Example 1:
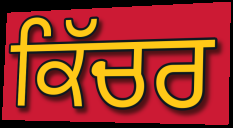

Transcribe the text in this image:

ਕਿੱਚਰ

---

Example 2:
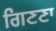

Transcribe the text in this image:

ਗਿਣਣਾ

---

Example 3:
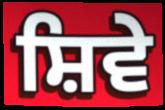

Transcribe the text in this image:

ਸ਼ਿਵੇ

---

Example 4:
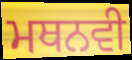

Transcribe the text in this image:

ਮਥਨਵੀ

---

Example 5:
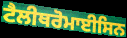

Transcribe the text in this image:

ਟੈਲੀਥਰੋਮਾਈਸਿਨ